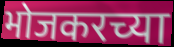
भोजकरच्या